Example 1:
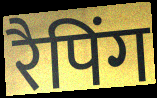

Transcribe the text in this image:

रैपिंग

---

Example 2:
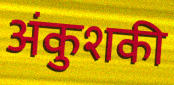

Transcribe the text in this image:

अंकुशकी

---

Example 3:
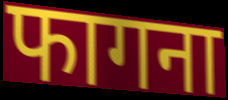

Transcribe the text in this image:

फागना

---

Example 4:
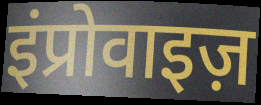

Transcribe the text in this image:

इंप्रोवाइज़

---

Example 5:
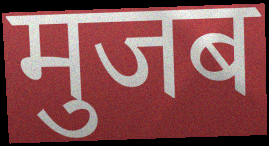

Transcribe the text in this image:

मुजब